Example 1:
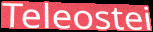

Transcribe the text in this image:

Teleostei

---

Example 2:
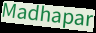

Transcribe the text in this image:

Madhapar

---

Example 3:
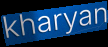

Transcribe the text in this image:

kharyan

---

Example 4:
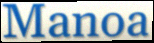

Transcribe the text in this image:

Manoa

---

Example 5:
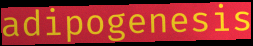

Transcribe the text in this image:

adipogenesis